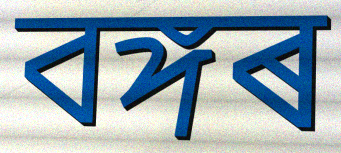
বঙ্গৰ